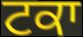
ਟਕਾ